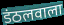
डंठलवाला